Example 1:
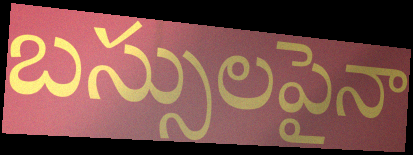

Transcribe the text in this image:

బస్సులపైనా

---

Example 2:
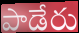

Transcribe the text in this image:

పాడేరు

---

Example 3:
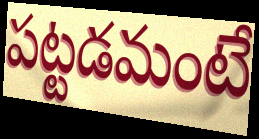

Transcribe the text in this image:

పట్టడమంటే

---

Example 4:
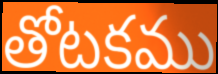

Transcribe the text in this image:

తోటకము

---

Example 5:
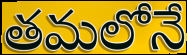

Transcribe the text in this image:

తమలోనే